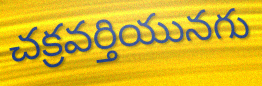
చక్రవర్తియునగు